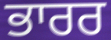
ਭਾਰਰ